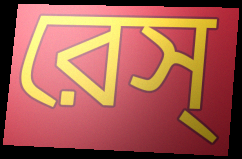
রেস্